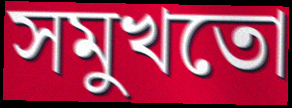
সমুখতো